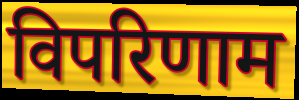
विपरिणाम